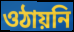
ওঠায়নি